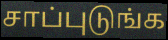
சாப்புடுங்க